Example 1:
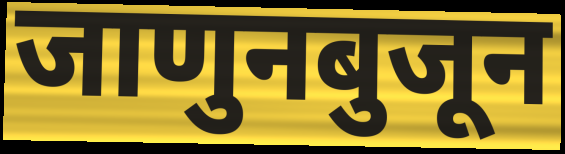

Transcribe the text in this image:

जाणुनबुजून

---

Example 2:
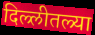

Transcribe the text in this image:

दिल्लीतल्या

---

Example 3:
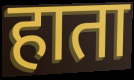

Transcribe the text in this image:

हाता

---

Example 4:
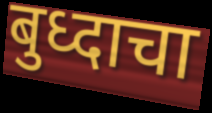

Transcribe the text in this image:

बुध्दाचा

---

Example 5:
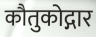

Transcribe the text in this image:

कौतुकोद्गार